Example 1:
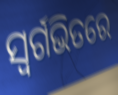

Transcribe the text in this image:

ସ୍ଵର୍ଗଭିତରେ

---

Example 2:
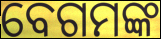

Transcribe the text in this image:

ବେଗମଙ୍କ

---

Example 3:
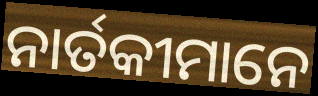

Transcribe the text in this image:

ନାର୍ତକୀମାନେ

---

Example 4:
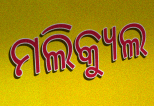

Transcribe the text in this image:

ମଲିକ୍ୟୁଲ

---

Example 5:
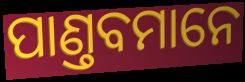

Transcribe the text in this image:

ପାଣ୍ତବମାନେ